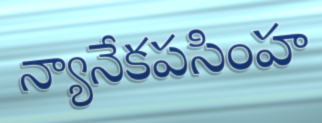
న్యానేకపసింహ